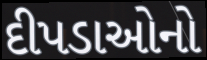
દીપડાઓનો